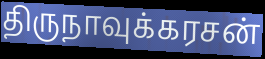
திருநாவுக்கரசன்